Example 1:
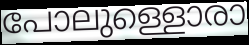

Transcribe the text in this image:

പോലുള്ളൊരാ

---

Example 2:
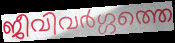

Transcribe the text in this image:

ജീവിവർഗ്ഗത്തെ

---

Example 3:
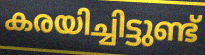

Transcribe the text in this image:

കരയിച്ചിട്ടുണ്ട്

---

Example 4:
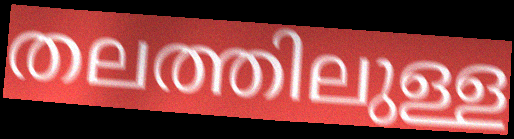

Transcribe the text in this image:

തലത്തിലുള്ള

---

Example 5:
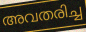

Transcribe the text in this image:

അവതരിച്ച